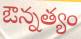
ఔన్నత్యం